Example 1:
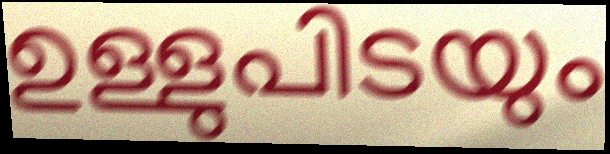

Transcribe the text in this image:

ഉള്ളുപിടയും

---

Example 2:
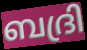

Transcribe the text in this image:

ബദ്രി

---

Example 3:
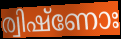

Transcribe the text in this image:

ര്വിഷ്ണോഃ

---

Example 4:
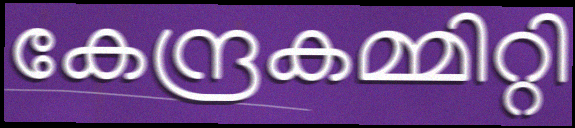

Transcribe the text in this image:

കേന്ദ്രകമ്മിറ്റി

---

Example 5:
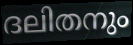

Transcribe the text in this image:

ദലിതനും